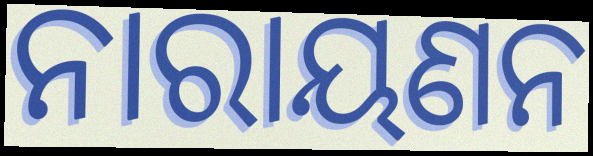
ନାରାୟଣନ